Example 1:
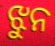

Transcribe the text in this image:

ଝୁନ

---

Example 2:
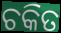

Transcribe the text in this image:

ଚକିତ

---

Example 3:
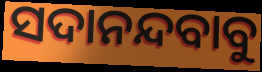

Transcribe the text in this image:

ସଦାନନ୍ଦବାବୁ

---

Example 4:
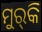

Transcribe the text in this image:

ମୁର୍‌କି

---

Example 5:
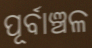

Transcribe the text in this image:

ପୂର୍ବାଞ୍ଚଳ